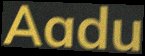
Aadu